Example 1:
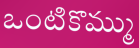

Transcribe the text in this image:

ఒంటికొమ్ము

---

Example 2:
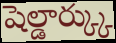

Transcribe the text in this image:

షెల్డార్క్కు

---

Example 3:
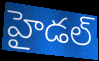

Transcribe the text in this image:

హైడల్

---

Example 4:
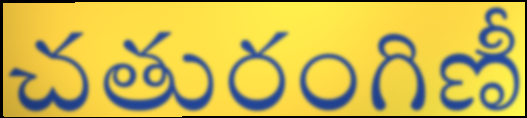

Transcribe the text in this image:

చతురంగిణీ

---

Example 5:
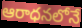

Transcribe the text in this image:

ఆరాధనలోనే